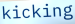
kicking